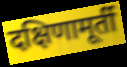
दक्षिणामूर्ती